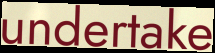
undertake